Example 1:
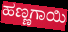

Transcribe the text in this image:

ಹಣ್ಣಗಾಯಿ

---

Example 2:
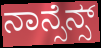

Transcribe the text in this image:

ನಾನ್ಸೆನ್ಸ್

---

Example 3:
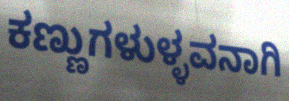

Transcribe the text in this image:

ಕಣ್ಣುಗಳುಳ್ಳವನಾಗಿ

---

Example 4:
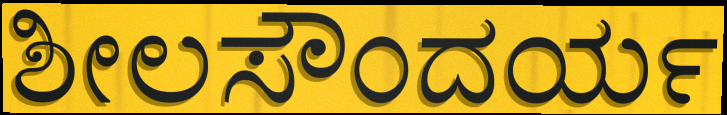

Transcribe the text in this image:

ಶೀಲಸೌಂದರ್ಯ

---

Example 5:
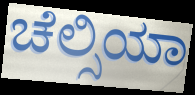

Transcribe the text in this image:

ಚೆಲ್ಸಿಯಾ